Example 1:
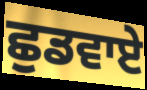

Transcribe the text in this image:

ਛੁਡਵਾਏ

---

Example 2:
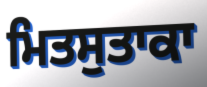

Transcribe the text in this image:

ਮਿਤਸੁਤਾਕਾ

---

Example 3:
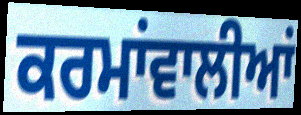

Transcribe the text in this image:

ਕਰਮਾਂਵਾਲੀਆਂ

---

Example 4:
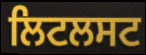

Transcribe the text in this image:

ਲਿਟਲਸਟ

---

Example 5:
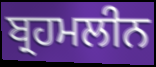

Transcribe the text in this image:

ਬ੍ਰਹਮਲੀਨ